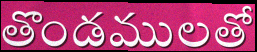
తొండములతో